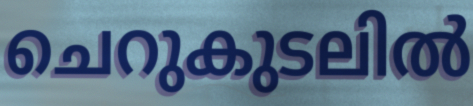
ചെറുകുടലിൽ